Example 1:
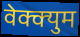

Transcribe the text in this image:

वेक्क्युम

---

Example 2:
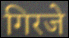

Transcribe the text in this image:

गिरजे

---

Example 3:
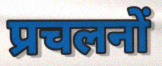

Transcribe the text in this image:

प्रचलनों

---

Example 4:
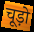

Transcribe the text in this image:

चूड़ो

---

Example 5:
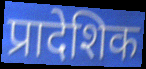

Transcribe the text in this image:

प्रादेशिक